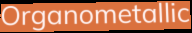
Organometallic